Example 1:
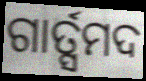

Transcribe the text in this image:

ଗାର୍ତ୍ସମଦ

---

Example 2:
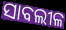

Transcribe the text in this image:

ସାବଲୀଳ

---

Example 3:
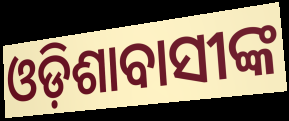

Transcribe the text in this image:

ଓଡ଼ିଶାବାସୀଙ୍କ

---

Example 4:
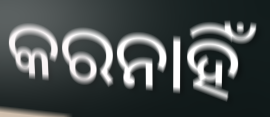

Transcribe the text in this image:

କରନାହିଁ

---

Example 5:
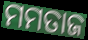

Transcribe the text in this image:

ମମତାଜ